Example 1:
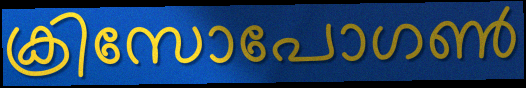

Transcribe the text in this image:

ക്രിസോപോഗൺ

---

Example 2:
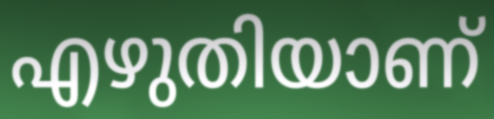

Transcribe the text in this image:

എഴുതിയാണ്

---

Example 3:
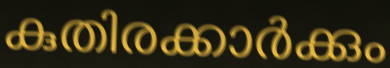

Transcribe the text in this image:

കുതിരക്കാർക്കും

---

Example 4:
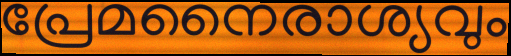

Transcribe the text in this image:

പ്രേമനൈരാശ്യവും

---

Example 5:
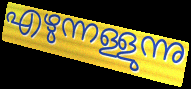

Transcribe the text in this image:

എഴുന്നള്ളുന്നു